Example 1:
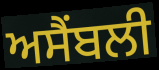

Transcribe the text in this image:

ਅਸੈਂਬਲੀ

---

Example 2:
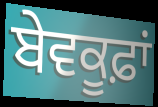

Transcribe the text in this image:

ਬੇਵਕੂਫ਼ਾਂ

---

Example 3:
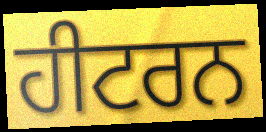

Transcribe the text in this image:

ਹੀਟਰਨ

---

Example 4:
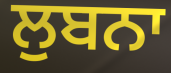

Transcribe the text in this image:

ਲੁਬਨਾ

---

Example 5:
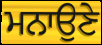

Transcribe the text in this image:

ਮਨਾਉਣੇ